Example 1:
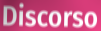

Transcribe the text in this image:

Discorso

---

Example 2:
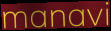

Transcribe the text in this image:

manavi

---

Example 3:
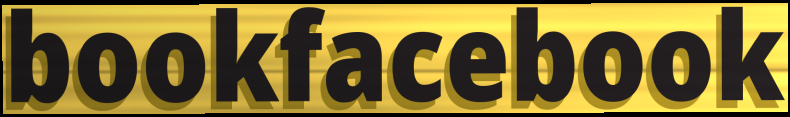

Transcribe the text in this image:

bookfacebook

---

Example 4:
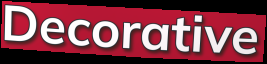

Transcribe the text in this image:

Decorative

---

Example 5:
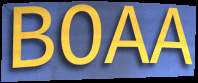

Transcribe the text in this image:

BOAA